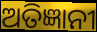
ଅତିଜ୍ଞାନୀ